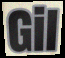
Gil